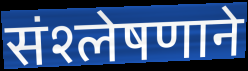
संश्लेषणाने